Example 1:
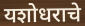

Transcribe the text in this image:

यशोधराचे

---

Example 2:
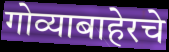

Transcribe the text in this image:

गोव्याबाहेरचे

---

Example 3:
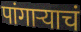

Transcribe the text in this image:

पांगाऱ्याचं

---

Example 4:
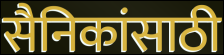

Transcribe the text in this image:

सैनिकांसाठी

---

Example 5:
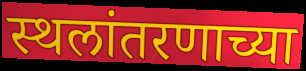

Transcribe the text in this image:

स्थलांतरणाच्या